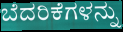
ಬೆದರಿಕೆಗಳನ್ನು